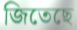
জিতেছে